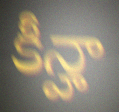
కీన్హా